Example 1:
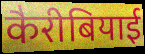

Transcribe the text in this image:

कैरीबियाई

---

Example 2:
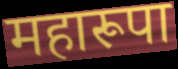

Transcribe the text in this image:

महारूपा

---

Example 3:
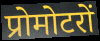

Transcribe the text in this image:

प्रोमोटरों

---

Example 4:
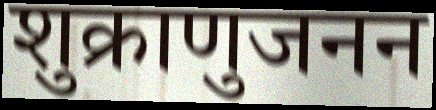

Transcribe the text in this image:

शुक्राणुजनन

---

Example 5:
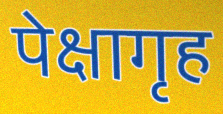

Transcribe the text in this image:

पेक्षागृह